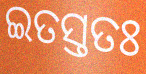
ଇତସ୍ତତଃ